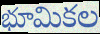
భూమికల